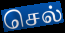
செல்